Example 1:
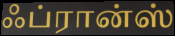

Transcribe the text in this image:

ஃப்ரான்ஸ்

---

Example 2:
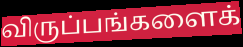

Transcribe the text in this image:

விருப்பங்களைக்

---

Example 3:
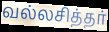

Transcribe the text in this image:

வல்லசித்தர்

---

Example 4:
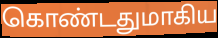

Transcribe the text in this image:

கொண்டதுமாகிய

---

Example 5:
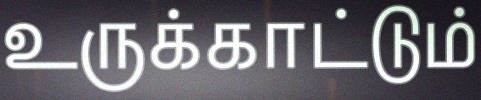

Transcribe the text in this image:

உருக்காட்டும்